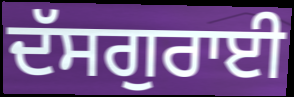
ਦੱਸਗੁਰਾਈ